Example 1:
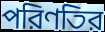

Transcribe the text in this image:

পরিণতির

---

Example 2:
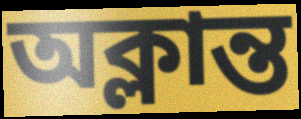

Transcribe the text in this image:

অক্লান্ত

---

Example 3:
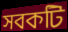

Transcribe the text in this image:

সবকটি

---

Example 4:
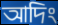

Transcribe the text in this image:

আদিং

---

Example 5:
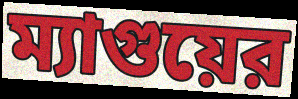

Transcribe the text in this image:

ম্যাগুয়ের